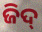
ଜିଦ୍